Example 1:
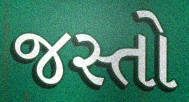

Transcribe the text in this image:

જસ્તો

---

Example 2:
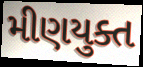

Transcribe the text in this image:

મીણયુક્ત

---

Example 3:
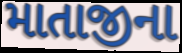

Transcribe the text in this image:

માતાજીના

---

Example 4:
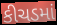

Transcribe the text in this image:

કીચડમાં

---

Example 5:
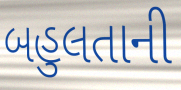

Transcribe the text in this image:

બહુલતાની